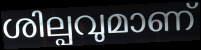
ശില്പവുമാണ്